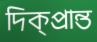
দিক্‌প্রান্ত